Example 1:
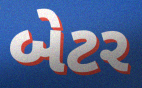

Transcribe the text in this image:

બેટર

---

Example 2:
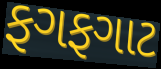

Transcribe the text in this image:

ફગફગાટ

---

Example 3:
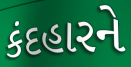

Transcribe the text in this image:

કંદહારને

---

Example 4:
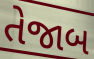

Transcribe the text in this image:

તેજાબ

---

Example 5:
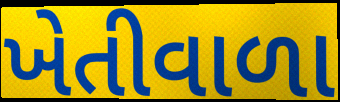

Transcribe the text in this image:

ખેતીવાળા